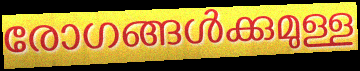
രോഗങ്ങൾക്കുമുള്ള